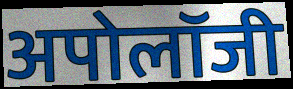
अपोलॉजी